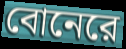
বোনেরে